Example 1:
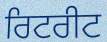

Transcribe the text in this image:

ਰਿਟਰੀਟ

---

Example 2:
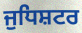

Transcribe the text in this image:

ਜੁਧਿਸ਼ਟਰ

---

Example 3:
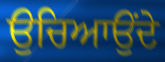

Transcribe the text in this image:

ਉਚਿਆਉਂਦੇ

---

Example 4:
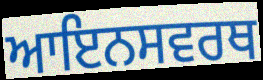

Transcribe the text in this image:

ਆਇਨਸਵਰਥ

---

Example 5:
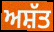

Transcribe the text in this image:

ਅਸ਼ੱਤ